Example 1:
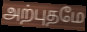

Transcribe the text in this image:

அற்புதமே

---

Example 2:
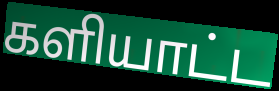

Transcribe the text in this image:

களியாட்ட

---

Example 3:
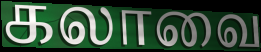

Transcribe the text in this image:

கலாவை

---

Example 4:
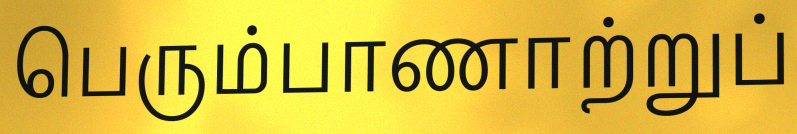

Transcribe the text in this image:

பெரும்பாணாற்றுப்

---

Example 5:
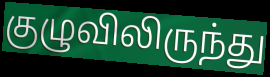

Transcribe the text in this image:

குழுவிலிருந்து